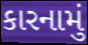
કારનામું